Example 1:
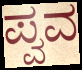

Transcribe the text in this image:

ಪ್ವವ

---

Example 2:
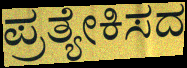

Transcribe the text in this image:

ಪ್ರತ್ಯೇಕಿಸದ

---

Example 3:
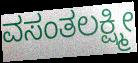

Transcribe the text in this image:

ವಸಂತಲಕ್ಷ್ಮೀ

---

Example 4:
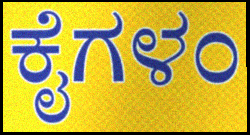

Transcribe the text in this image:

ಕೈಗಳಂ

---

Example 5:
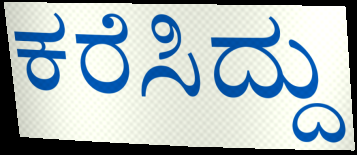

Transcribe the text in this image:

ಕರೆಸಿದ್ದು